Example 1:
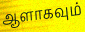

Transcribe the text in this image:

ஆளாகவும்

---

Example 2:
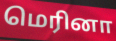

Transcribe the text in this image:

மெரினா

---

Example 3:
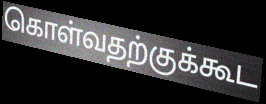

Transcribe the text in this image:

கொள்வதற்குக்கூட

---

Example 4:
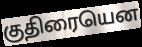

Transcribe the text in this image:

குதிரையென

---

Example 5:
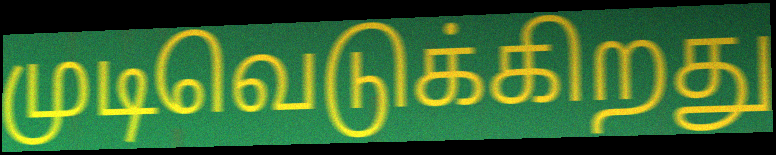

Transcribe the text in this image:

முடிவெடுக்கிறது